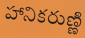
హానికరుణ్ణి